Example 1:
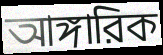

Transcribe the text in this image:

আঙ্গারিক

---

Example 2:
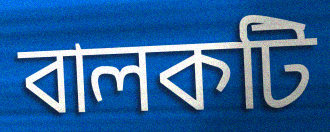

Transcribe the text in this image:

বালকটি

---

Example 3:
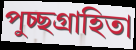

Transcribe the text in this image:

পুচ্ছগ্রাহিতা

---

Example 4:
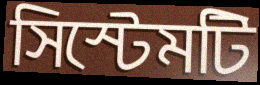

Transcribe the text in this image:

সিস্টেমটি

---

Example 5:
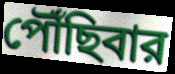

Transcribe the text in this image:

পৌঁছিবার